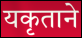
यकृताने